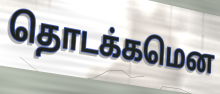
தொடக்கமென